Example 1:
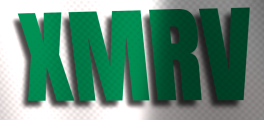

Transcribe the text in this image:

XMRV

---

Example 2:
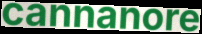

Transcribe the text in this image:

cannanore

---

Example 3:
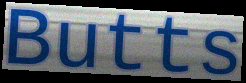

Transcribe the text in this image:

Butts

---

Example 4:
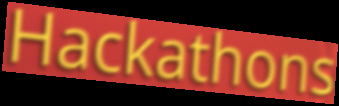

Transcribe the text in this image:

Hackathons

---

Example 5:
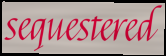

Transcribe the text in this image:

sequestered